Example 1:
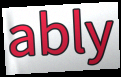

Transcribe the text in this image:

ably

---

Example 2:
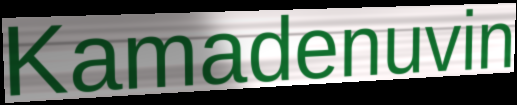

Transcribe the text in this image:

Kamadenuvin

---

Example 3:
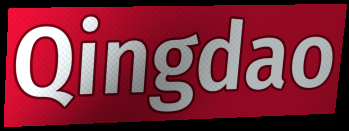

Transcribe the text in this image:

Qingdao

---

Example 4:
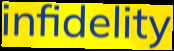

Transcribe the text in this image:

infidelity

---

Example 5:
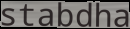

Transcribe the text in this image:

stabdha